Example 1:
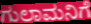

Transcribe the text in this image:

ಗುಲಾಮನಿಗೆ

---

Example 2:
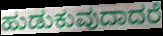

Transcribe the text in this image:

ಹುಡುಕುವುದಾದರೆ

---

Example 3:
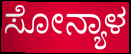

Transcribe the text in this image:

ಸೋನ್ಯಾಳ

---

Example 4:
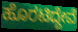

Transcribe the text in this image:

ಹೊರಟಿದ್ದೇವೆ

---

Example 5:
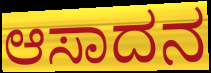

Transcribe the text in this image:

ಆಸಾದನ